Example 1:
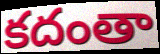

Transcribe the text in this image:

కదంతా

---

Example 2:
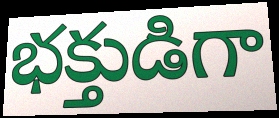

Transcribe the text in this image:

భక్తుడిగా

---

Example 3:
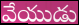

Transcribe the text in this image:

వేయుడు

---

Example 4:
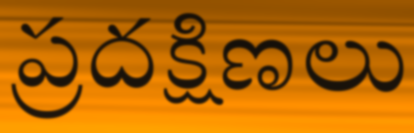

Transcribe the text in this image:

ప్రదక్షిణలు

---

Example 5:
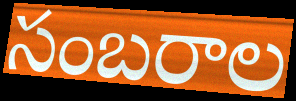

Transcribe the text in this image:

సంబరాల